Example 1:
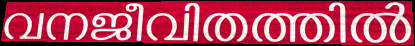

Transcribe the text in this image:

വനജീവിതത്തിൽ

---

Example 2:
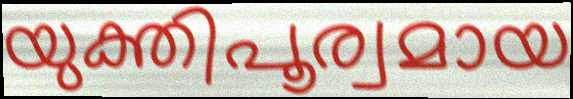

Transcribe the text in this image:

യുക്തിപൂര്വമായ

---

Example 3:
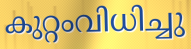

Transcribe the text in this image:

കുറ്റംവിധിച്ചു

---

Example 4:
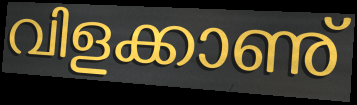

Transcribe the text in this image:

വിളക്കാണു്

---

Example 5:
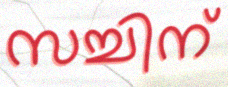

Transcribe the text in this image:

സച്ചിന്